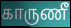
காருணீ